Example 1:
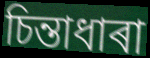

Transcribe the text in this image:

চিন্তাধাৰা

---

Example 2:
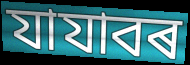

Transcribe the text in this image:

যাযাবৰ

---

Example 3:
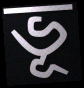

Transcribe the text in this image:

ভূ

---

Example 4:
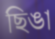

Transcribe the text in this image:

ছিঙা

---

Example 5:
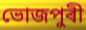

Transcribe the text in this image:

ভোজপুৰী